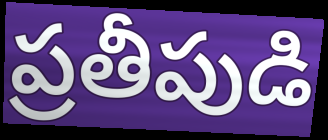
ప్రతీపుడి